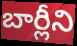
బార్లీని